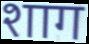
शाग